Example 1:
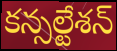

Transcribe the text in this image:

కన్సల్టేశన్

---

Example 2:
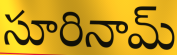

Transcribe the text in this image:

సూరినామ్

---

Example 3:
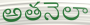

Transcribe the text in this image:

అతనెలా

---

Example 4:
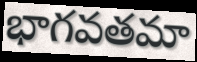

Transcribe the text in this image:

భాగవతమా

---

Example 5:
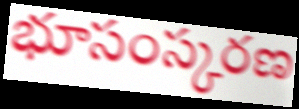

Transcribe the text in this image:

భూసంస్కరణ